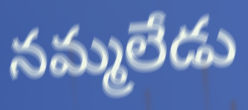
నమ్మలేడు